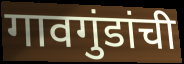
गावगुंडांची